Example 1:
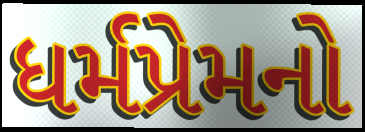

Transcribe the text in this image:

ધર્મપ્રેમનો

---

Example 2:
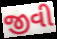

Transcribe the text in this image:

જીવી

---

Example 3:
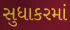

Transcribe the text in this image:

સુધાકરમાં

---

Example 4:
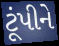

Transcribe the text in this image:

ટૂંપીને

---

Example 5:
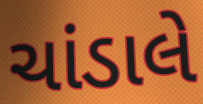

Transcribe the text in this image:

ચાંડાલે